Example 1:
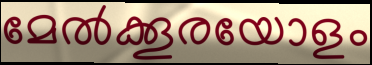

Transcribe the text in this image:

മേൽക്കൂരയോളം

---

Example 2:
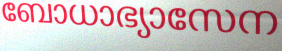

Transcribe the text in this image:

ബോധാഭ്യാസേന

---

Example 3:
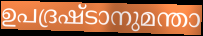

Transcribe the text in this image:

ഉപദ്രഷ്ടാനുമന്താ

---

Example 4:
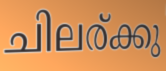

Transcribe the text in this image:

ചിലര്ക്കു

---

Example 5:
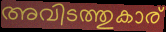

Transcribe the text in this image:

അവിടത്തുകാര്